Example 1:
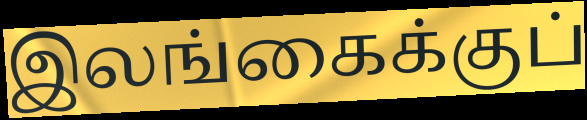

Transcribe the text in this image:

இலங்கைக்குப்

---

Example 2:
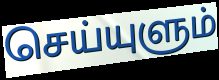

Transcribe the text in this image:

செய்யுளும்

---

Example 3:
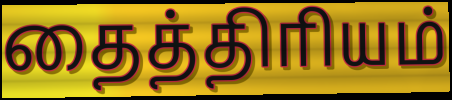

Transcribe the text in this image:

தைத்திரியம்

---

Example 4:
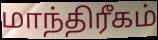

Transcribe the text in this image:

மாந்திரீகம்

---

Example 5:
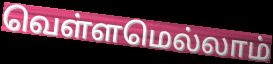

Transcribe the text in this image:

வெள்ளமெல்லாம்